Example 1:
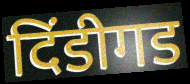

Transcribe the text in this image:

दिंडीगड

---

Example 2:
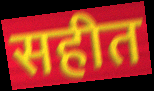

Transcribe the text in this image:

सहीत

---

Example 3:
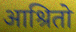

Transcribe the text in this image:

आश्रितो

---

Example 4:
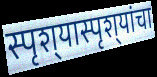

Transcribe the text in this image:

स्पृश्यास्पृश्यांचा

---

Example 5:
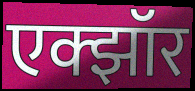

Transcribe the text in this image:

एक्झॉर